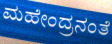
ಮಹೇಂದ್ರನಂತೆ